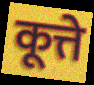
कूत्ते